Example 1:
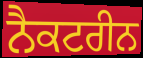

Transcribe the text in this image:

ਨੈਕਟਰੀਨ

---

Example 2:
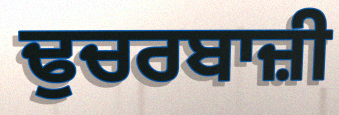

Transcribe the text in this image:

ਢੁਚਰਬਾਜ਼ੀ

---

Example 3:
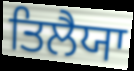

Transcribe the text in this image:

ਤਿਲੈਯਾ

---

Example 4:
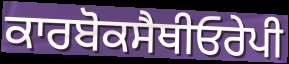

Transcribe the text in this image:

ਕਾਰਬੋਕਸੈਥੀਓਰੇਪੀ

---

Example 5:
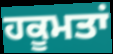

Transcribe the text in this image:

ਹਕੂਮਤਾਂ